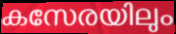
കസേരയിലും